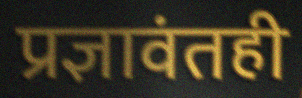
प्रज्ञावंतही